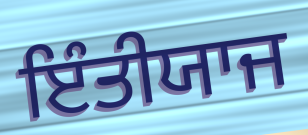
ਇੰਤੀਯਾਜ